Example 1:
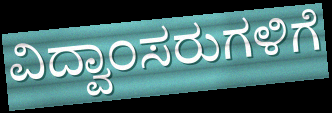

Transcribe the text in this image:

ವಿದ್ವಾಂಸರುಗಳಿಗೆ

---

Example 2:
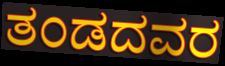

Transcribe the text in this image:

ತಂಡದವರ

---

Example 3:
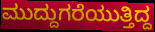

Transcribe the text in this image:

ಮುದ್ದುಗರೆಯುತ್ತಿದ್ದ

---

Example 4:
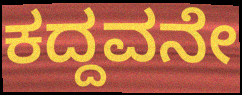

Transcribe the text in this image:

ಕದ್ದವನೇ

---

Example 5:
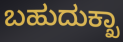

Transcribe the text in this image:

ಬಹುದುಕ್ಖಾ